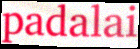
padalai